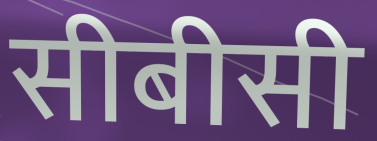
सीबीसी